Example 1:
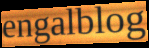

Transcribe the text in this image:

engalblog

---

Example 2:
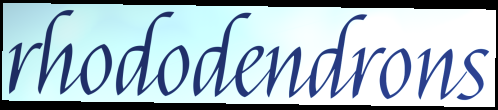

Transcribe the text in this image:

rhododendrons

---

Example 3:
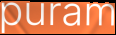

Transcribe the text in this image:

puram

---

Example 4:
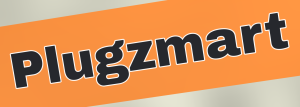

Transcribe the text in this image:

Plugzmart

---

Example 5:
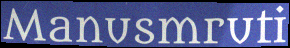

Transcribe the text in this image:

Manusmruti